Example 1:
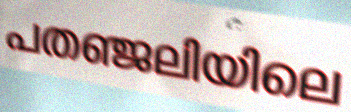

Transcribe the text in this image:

പതഞ്ജലിയിലെ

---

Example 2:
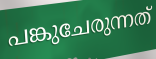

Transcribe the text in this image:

പങ്കുചേരുന്നത്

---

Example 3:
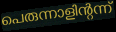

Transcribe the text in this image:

പെരുന്നാളിന്റന്ന്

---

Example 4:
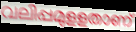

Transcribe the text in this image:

വലിപ്പമുളളതാണ്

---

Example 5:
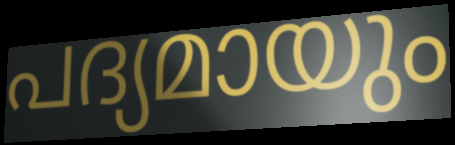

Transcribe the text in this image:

പദ്യമായും